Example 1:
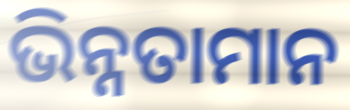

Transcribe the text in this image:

ଭିନ୍ନତାମାନ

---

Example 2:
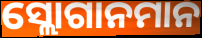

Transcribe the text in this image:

ସ୍ଲୋଗାନମାନ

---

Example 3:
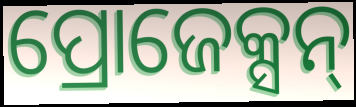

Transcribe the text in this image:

ପ୍ରୋଜେକ୍ସନ୍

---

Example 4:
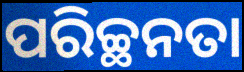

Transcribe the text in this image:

ପରିଚ୍ଛନତା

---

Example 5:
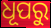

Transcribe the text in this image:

ଧୂପରୁ